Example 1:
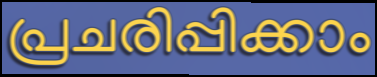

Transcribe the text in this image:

പ്രചരിപ്പിക്കാം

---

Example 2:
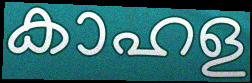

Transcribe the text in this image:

കാഹള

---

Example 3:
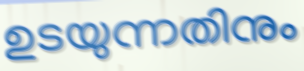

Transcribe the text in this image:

ഉടയുന്നതിനും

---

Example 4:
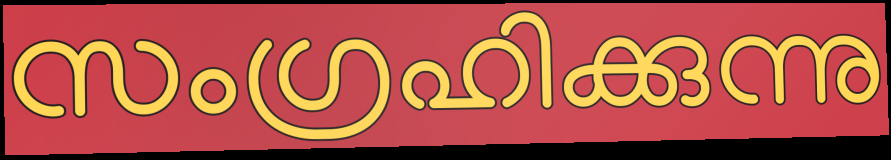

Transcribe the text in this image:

സംഗ്രഹിക്കുന്നു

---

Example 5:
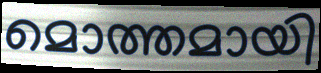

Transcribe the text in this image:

മൊത്തമായി